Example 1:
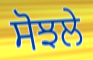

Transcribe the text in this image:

ਸੋਝਲੇ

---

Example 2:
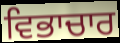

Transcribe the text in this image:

ਵਿਭਾਚਾਰ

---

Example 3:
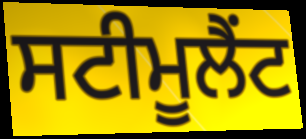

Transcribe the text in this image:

ਸਟੀਮੂਲੈਂਟ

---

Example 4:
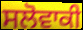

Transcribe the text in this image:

ਸਲੋਵਾਕੀ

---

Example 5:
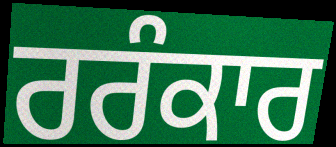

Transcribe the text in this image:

ਰਰੰਕਾਰ